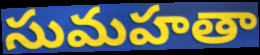
సుమహతా